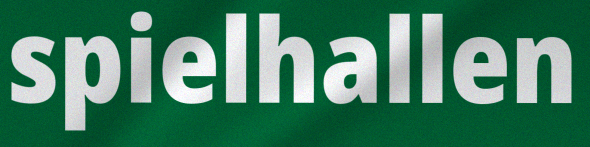
spielhallen